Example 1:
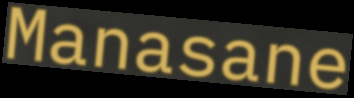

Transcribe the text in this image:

Manasane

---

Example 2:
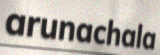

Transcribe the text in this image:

arunachala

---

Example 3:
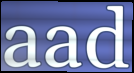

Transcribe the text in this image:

aad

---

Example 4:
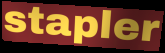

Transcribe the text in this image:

stapler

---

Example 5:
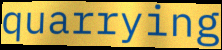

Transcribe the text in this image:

quarrying